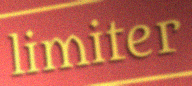
limiter